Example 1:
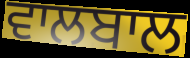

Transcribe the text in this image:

ਵਾਲਬਾਲ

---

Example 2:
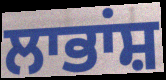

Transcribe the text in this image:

ਲਾਭਾਂਸ਼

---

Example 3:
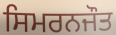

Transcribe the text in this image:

ਸਿਮਰਨਜੌਤ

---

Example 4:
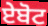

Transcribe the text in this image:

ਏਬੋਟ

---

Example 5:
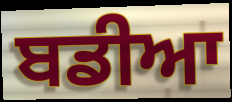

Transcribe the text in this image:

ਬਡੀਆ